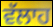
ਵੱਲਾਹ